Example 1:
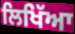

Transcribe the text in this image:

ਲਿਖਿੱਆ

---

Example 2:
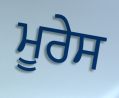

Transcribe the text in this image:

ਮੂਰੇਸ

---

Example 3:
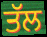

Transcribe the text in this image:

ਤੱਲ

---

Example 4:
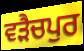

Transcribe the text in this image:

ਵੜੈਚਪੁਰ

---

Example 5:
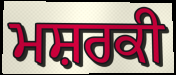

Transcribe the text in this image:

ਮਸ਼ਰਕੀ